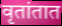
वृतांतात